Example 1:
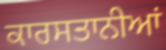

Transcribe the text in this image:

ਕਾਰਸਤਾਨੀਆਂ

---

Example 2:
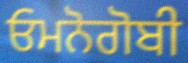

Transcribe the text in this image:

ਓਮਨੋਗੋਬੀ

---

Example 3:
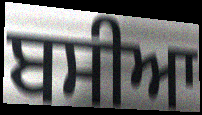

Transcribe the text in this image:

ਬਸੀਆ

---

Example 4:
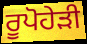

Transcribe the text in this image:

ਰੂਪੋਹੇੜੀ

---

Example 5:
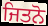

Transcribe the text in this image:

ਜਿਤਨੋ